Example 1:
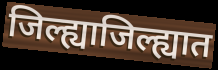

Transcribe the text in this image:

जिल्ह्याजिल्ह्यात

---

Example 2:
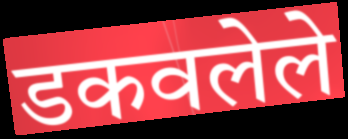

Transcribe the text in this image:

डकवलेले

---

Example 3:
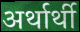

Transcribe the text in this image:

अर्थार्थी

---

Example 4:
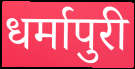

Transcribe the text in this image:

धर्मापुरी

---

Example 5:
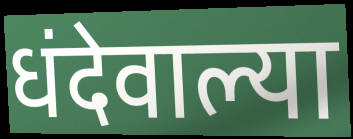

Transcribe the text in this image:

धंदेवाल्या